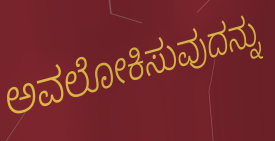
ಅವಲೋಕಿಸುವುದನ್ನು